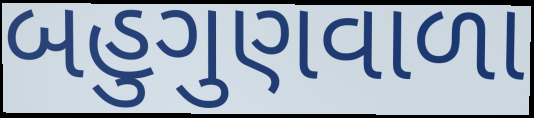
બહુગુણવાળા